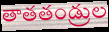
తాతతండ్రుల